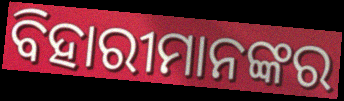
ବିହାରୀମାନଙ୍କର